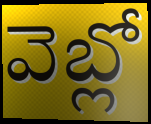
వెబ్లో